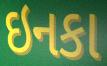
ઇનકા